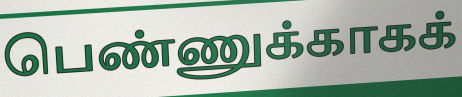
பெண்ணுக்காகக்